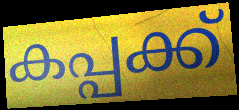
കപ്പക്ക്